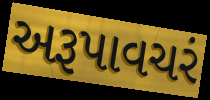
અરૂપાવચરં